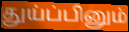
துய்ப்பினும்